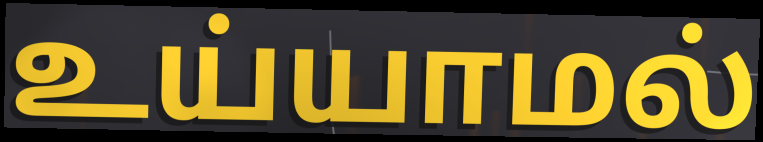
உய்யாமல்